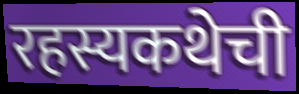
रहस्यकथेची